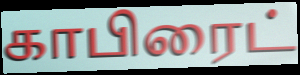
காபிரைட்